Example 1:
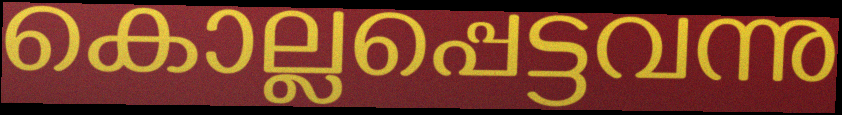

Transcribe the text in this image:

കൊല്ലപ്പെട്ടവന്നു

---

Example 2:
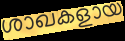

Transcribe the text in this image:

ശാഖകളായ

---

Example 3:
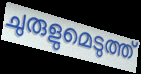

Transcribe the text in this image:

ചുരുളുമെടുത്ത്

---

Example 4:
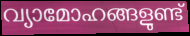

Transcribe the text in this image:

വ്യാമോഹങ്ങളുണ്ട്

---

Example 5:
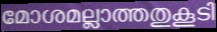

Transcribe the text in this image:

മോശമല്ലാത്തതുകൂടി